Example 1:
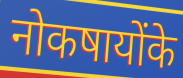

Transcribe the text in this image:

नोकषायोंके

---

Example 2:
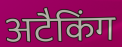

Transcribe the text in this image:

अटैकिंग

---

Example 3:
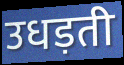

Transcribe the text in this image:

उधड़ती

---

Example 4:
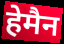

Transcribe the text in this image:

हेमैन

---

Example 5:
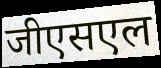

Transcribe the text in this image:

जीएसएल